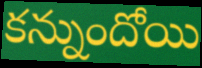
కన్నుందోయి